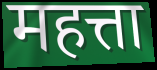
महत्ता